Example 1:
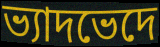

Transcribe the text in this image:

ভ্যাদভেদে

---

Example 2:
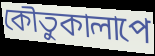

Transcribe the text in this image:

কৌতুকালাপে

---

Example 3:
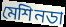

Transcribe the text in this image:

মেশিনডা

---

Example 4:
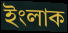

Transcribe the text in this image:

ইংলাক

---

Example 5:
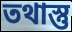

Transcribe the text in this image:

তথাস্তু